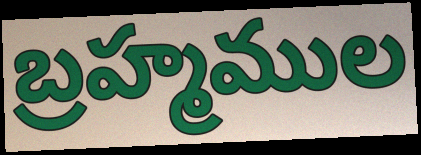
బ్రహ్మముల